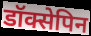
डॉक्सेपिन